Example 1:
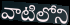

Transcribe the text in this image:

వాటిలోని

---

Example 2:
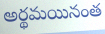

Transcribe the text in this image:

అర్థమయినంత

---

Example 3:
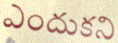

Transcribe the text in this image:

ఎందుకని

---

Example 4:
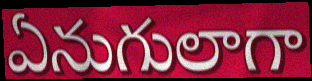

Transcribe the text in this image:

ఏనుగులాగా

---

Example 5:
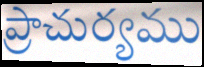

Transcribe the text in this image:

ప్రాచుర్యము